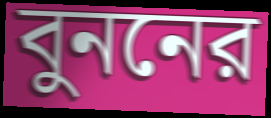
বুননের